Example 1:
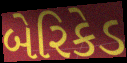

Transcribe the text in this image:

બેરિકેડ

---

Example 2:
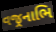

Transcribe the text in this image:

વજ્રનાભિ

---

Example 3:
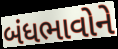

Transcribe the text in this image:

બંધભાવોને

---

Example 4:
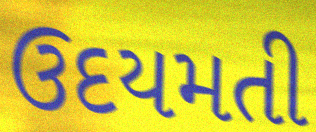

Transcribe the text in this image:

ઉદયમતી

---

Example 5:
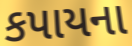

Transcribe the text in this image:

કપાયના